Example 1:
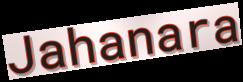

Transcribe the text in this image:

Jahanara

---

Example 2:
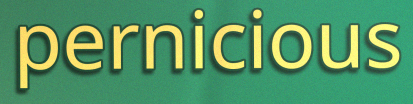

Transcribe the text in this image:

pernicious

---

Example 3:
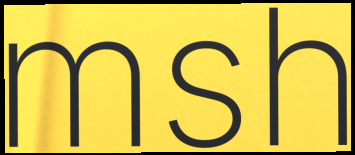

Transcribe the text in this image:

msh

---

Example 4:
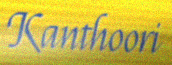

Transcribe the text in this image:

Kanthoori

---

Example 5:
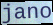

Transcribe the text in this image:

jano